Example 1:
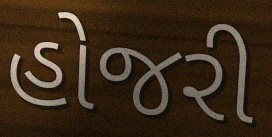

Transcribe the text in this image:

હોજરી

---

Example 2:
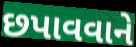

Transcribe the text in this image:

છપાવવાને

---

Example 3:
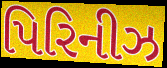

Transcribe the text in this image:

પિરિનીઝ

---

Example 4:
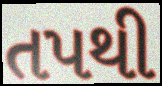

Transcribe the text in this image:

તપથી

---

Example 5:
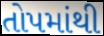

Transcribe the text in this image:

તોપમાંથી